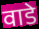
वाडे